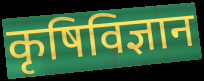
कृषिविज्ञान